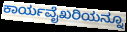
ಕಾರ್ಯವೈಖರಿಯನ್ನೂ